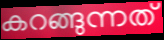
കറങ്ങുന്നത്